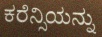
ಕರೆನ್ಸಿಯನ್ನು